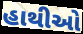
હાથીઓ